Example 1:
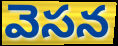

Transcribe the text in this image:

వెసన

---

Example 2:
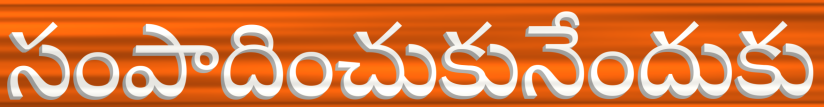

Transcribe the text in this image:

సంపాదించుకునేందుకు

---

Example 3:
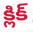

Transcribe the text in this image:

క్లిక్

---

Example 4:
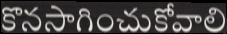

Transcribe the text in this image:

కొనసాగించుకోవాలి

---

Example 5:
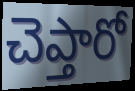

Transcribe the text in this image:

చెప్తారో